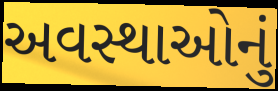
અવસ્થાઓનું